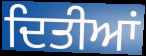
ਦਿਤੀਆਂ